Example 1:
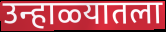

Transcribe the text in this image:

उन्हाळ्यातला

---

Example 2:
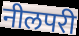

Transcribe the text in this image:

नीलपरी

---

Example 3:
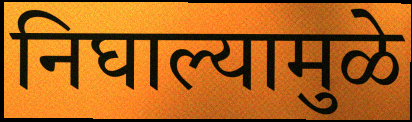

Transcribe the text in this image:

निघाल्यामुळे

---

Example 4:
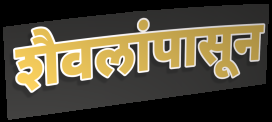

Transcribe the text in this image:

शैवलांपासून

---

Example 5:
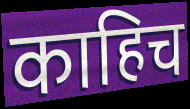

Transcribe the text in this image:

काहिच